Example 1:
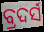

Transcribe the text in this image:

ବ୍ରଦର୍ସ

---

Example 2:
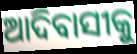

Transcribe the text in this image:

ଆଦିବାସୀକୁ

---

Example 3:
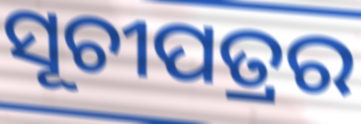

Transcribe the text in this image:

ସୂଚୀପତ୍ରର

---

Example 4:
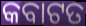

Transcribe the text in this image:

କବାଟତ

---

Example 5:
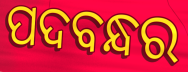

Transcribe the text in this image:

ପଦବନ୍ଧର